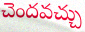
చెందవచ్చు